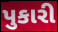
પુકારી